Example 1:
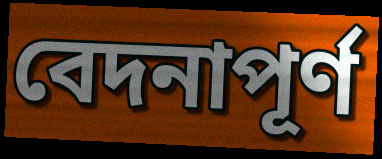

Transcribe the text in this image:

বেদনাপূর্ণ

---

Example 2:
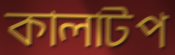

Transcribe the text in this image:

কালাটপ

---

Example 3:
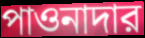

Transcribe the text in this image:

পাওনাদার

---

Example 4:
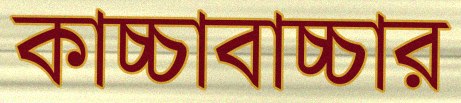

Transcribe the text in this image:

কাচ্চাবাচ্চার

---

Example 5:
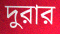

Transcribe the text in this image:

দুরার